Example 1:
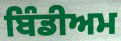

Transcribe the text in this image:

ਬਿੰਡੀਅਮ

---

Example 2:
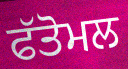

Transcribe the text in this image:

ਫੱਤੋਮਲ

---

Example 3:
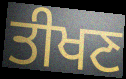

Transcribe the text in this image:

ਤੀਖਣ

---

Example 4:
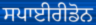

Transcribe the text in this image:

ਸਪਾਈਰੀਡੋਨ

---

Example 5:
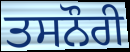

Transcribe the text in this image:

ਤਸਨੌਰੀ